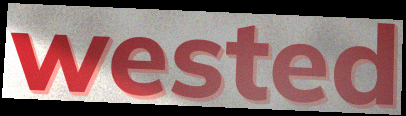
wested